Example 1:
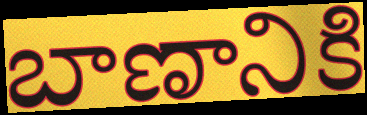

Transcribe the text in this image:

బాణానికి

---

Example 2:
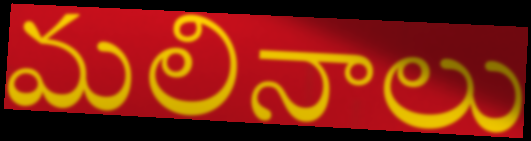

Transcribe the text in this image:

మలినాలు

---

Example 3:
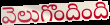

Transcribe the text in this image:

వెలుగొందింది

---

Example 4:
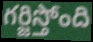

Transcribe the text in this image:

గర్జిస్తోంది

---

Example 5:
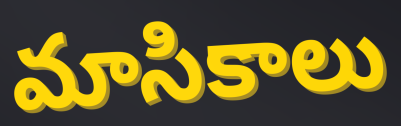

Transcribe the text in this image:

మాసికాలు